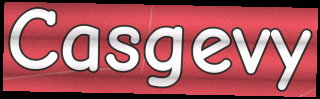
Casgevy